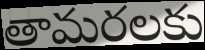
తామరలకు